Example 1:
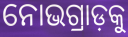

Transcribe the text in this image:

ନୋଭଗ୍ରାଡ଼କୁ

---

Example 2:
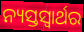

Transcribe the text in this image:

ନ୍ୟସ୍ତସ୍ଵାର୍ଥର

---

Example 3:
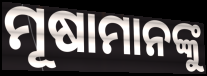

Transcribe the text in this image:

ମୂଷାମାନଙ୍କୁ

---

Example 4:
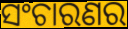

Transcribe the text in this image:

ସଂଚାରଣର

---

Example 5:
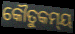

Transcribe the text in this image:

କୌତୁକମ୍‍ୟ